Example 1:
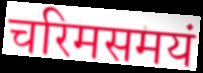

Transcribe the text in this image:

चरिमसमयं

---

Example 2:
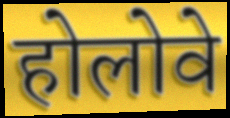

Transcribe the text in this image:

होलोवे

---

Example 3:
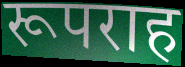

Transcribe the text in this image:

रूपराह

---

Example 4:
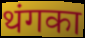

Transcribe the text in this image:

थंगका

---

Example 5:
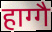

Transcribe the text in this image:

हाग्गै